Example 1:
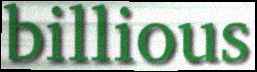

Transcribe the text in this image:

billious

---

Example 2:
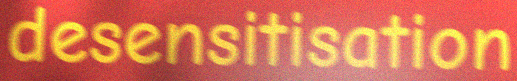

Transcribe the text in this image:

desensitisation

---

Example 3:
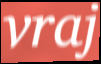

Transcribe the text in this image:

vraj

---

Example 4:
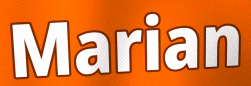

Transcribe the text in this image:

Marian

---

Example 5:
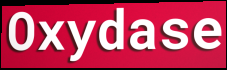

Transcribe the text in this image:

Oxydase